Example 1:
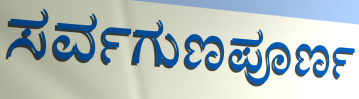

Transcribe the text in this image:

ಸರ್ವಗುಣಪೂರ್ಣ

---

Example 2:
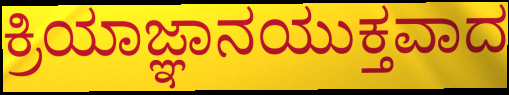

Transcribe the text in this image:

ಕ್ರಿಯಾಜ್ಞಾನಯುಕ್ತವಾದ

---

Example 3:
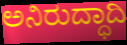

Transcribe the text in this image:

ಅನಿರುದ್ಧಾದಿ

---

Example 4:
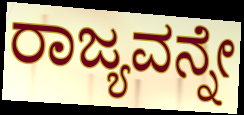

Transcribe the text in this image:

ರಾಜ್ಯವನ್ನೇ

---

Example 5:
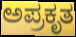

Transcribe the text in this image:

ಅಪ್ರಕೃತ